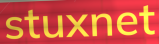
stuxnet